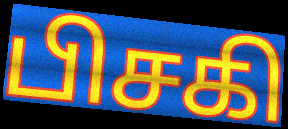
பிசகி